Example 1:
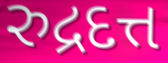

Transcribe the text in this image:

રુદ્રદત્ત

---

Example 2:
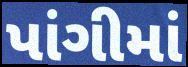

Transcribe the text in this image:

પાંગીમાં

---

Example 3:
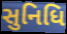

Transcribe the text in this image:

સુનિધિ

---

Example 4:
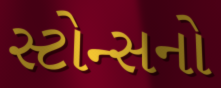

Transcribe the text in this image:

સ્ટોન્સનો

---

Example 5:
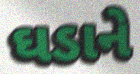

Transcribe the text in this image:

ઘડાને